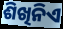
ଶିଖିନିଏ